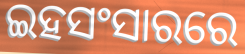
ଇହସଂସାରରେ